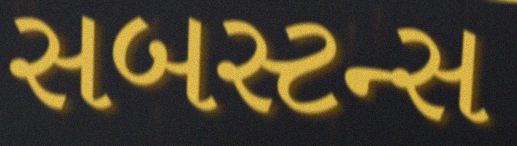
સબસ્ટન્સ